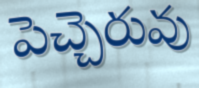
పెచ్చెరువు